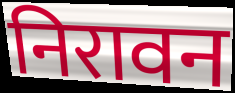
निरावन